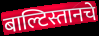
बाल्टिस्तानचे